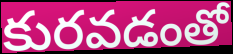
కురవడంతో